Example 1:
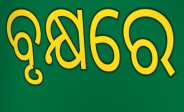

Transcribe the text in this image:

ବୃକ୍ଷରେ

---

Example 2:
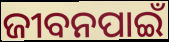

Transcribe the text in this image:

ଜୀବନପାଇଁ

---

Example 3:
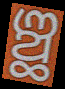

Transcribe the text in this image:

ଞ୍ଛ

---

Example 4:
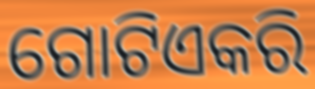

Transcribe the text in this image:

ଗୋଟିଏକରି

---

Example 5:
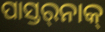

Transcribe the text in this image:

ପାସ୍ତର୍‍ନାକ୍